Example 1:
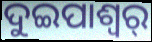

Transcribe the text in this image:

ଦୁଇପାଶ୍ୱର୍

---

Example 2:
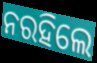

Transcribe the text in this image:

ନରହିଲେ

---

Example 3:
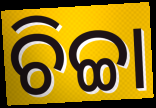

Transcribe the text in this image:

ଚିଚ୍ଚା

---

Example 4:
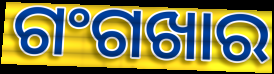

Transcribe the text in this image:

ଗଂଗଖାର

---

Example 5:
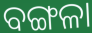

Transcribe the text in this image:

ବଙ୍ଗଳା